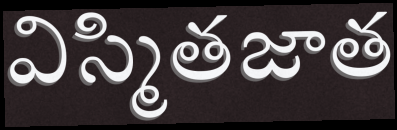
విస్మితజాత